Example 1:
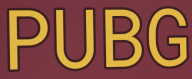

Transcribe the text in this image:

PUBG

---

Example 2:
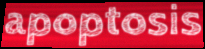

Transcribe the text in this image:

apoptosis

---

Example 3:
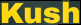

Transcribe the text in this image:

Kush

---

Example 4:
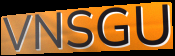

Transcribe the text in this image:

VNSGU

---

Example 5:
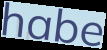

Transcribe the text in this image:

habe